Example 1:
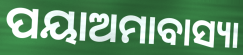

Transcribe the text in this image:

ପୟାଅମାବାସ୍ୟା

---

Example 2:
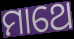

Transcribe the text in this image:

ମାଥେ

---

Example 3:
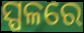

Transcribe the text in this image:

ସ୍ପଳରେ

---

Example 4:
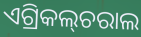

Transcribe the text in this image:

ଏଗ୍ରିକଲ୍‌ଚରାଲ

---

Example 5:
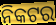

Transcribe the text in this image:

ନିକଟର